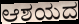
ಆಶಯದ